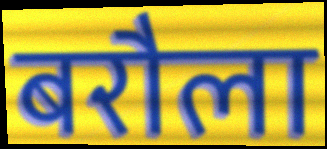
बरौला